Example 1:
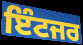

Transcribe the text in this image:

ਇੰਟਜਰ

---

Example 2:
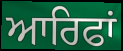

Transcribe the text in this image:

ਆਰਿਫਾਂ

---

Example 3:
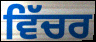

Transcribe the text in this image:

ਵਿੱਚਰ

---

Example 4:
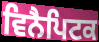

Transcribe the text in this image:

ਵਿਨੈਪਿਟਕ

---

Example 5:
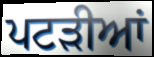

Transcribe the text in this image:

ਪਟਡ਼ੀਆਂ